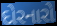
દોરનારો